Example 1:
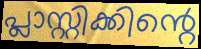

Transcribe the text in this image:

പ്ലാസ്റ്റിക്കിന്റെ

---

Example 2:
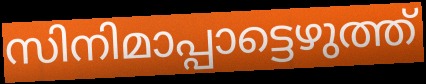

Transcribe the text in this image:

സിനിമാപ്പാട്ടെഴുത്ത്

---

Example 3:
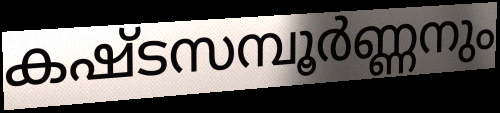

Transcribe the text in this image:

കഷ്ടസമ്പൂർണ്ണനും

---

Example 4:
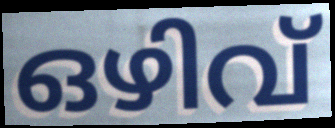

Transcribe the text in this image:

ഒഴിവ്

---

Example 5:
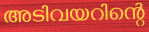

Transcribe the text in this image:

അടിവയറിന്റെ